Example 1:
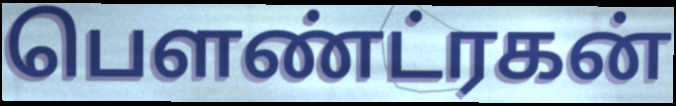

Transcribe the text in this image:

பௌண்ட்ரகன்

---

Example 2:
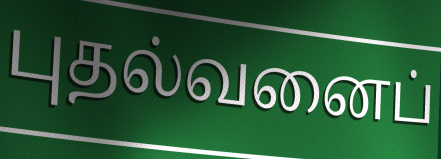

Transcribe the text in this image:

புதல்வனைப்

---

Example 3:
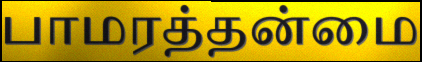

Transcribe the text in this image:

பாமரத்தன்மை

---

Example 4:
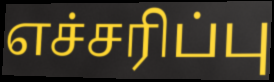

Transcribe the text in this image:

எச்சரிப்பு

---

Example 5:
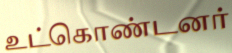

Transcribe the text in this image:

உட்கொண்டனர்